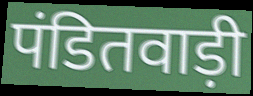
पंडितवाड़ी